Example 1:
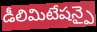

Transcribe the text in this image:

డీలిమిటేషన్పై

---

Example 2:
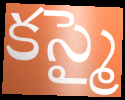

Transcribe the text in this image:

కస్మై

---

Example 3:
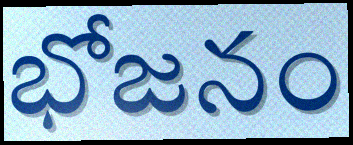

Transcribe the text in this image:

భోజనం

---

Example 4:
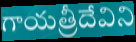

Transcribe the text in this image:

గాయత్రీదేవిని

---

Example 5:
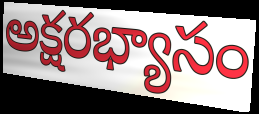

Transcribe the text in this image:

అక్షరభ్యాసం